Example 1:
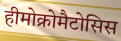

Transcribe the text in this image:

हीमोक्रोमैटोसिस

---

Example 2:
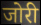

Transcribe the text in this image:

जोरी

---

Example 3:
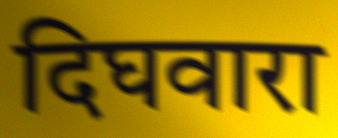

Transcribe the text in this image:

दिघवारा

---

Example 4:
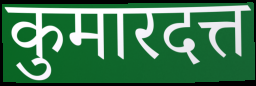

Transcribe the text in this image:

कुमारदत्त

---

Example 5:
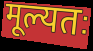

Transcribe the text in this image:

मूल्यतः